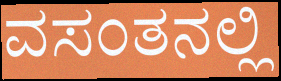
ವಸಂತನಲ್ಲಿ